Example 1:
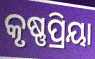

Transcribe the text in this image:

କୃଷ୍ଣପ୍ରିୟା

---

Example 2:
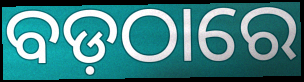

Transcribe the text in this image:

ବଡ଼ଠାରେ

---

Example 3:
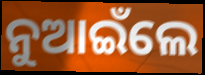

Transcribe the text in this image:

ନୁଆଇଁଲେ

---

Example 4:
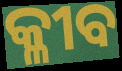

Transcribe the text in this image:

କ୍ଳୀବ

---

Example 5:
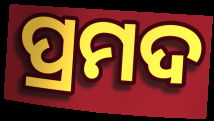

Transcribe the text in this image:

ପ୍ରମଦ